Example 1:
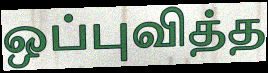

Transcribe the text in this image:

ஒப்புவித்த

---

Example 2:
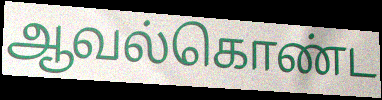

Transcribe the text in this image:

ஆவல்கொண்ட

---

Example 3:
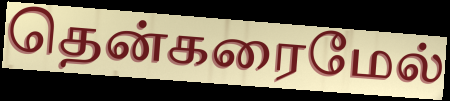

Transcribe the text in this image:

தென்கரைமேல்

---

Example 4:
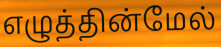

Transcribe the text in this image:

எழுத்தின்மேல்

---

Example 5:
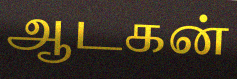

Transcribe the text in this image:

ஆடகன்